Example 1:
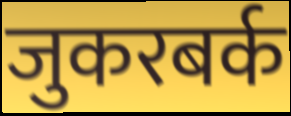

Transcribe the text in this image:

जुकरबर्क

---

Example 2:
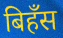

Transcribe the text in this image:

बिहँस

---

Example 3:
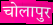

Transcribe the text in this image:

चोलापुर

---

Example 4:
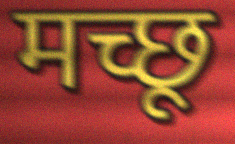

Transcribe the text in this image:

मच्छू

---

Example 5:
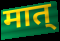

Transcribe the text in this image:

मात्